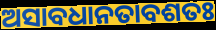
ଅସାବଧାନତାବଶତଃ